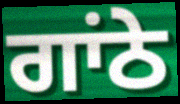
ਗਾਂਠੇ